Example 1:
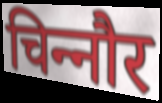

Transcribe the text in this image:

चिन्‍नौर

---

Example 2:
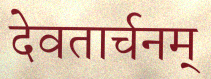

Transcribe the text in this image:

देवतार्चनम्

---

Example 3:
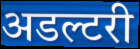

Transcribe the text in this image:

अडल्टरी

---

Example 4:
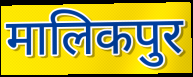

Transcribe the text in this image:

मालिकपुर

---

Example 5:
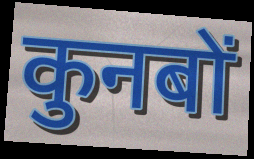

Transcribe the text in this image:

कुनबों